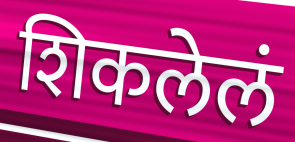
शिकलेलं